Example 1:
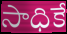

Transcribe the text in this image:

సాధికే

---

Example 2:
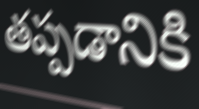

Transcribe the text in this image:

తప్పడానికి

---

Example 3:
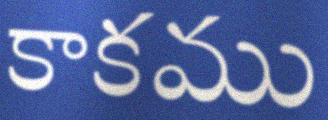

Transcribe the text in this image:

కాకము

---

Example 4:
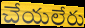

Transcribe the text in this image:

చేయలేరు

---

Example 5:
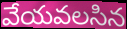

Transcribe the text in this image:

వేయవలసిన